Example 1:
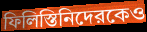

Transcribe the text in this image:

ফিলিস্তিনিদেরকেও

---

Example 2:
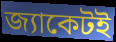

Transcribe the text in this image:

জ্যাকেটই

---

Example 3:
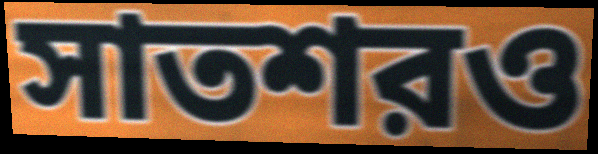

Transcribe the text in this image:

সাতশরও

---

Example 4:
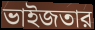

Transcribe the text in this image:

ভাইজতার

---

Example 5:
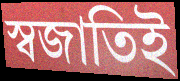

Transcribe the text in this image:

স্বজাতিই